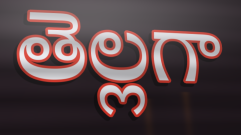
తెల్లగా